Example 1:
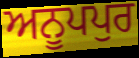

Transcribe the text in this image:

ਅਨੂਪਪੁਰ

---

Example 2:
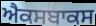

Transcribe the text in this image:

ਐਕਸਬਾਕਸ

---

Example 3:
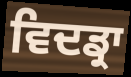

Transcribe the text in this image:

ਵਿਦਡ੍ਰਾ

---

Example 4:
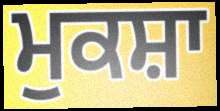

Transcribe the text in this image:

ਮੁਕਸ਼ਾ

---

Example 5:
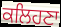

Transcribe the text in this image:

ਕਲਿਹਣਾ